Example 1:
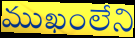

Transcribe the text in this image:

ముఖంలేని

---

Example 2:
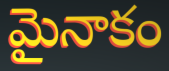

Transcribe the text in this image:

మైనాకం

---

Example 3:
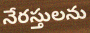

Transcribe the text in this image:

నేరస్తులను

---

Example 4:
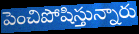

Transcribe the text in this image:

పెంచిపోషిస్తున్నారు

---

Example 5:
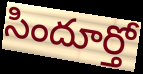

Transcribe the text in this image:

సిందూర్తో